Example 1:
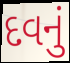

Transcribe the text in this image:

દવનું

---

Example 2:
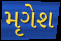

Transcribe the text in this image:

મૃગેશ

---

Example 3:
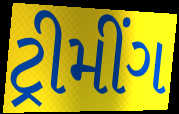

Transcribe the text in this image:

ટ્રીમીંગ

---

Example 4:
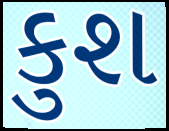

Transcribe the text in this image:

કુશ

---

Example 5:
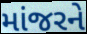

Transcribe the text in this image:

માંજરને